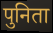
पुनिता